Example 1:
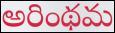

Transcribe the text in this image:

అరింథమ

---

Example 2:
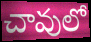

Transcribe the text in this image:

చావులో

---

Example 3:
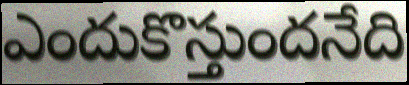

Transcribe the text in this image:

ఎందుకొస్తుందనేది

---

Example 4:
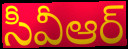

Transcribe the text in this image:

సీవీఆర్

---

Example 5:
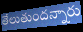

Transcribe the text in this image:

తేలుతుందన్నారు